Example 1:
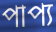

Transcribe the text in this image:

পাপ্য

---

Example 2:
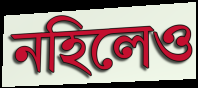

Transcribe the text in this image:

নহিলেও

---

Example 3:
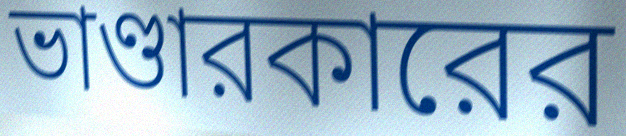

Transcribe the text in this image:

ভাণ্ডারকারের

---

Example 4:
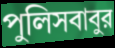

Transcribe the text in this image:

পুলিসবাবুর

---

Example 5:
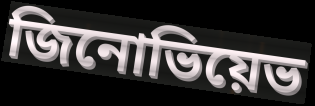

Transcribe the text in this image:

জিনোভিয়েভ